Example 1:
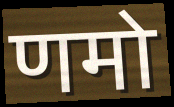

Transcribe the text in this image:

णमो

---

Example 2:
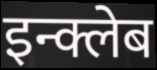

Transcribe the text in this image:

इन्क्लेब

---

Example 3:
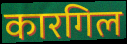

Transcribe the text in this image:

कारगिल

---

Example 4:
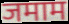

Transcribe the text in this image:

जमाम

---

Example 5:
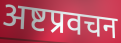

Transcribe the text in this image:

अष्टप्रवचन